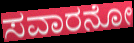
ಸವಾರನೋ